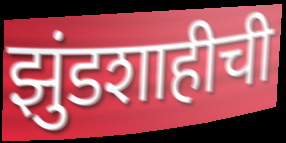
झुंडशाहीची